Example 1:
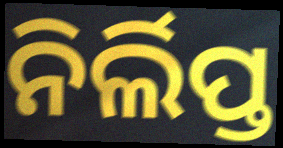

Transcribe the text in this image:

ନିର୍ଲିପ୍ତ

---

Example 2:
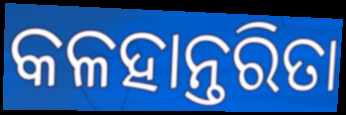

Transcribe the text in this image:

କଳହାନ୍ତରିତା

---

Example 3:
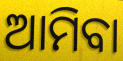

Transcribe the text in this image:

ଆମିବା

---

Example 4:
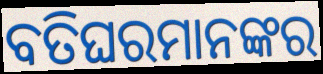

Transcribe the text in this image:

ବତିଘରମାନଙ୍କର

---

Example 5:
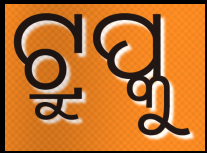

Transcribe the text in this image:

ଟ୍ରୁପ୍କୁ